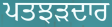
ਪਤਝੜਦਾਰ